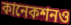
কানেকশনও